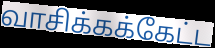
வாசிக்கக்கேட்ட